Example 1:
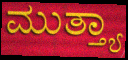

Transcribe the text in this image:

ಮುತ್ತ್ಯಾ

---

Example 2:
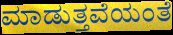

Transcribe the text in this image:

ಮಾಡುತ್ತವೆಯಂತೆ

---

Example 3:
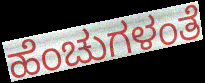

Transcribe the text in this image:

ಹೆಂಚುಗಳಂತೆ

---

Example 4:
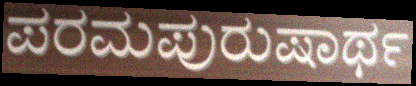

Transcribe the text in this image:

ಪರಮಪುರುಷಾರ್ಥ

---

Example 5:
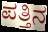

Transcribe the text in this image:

ಪತ್ತಿನ